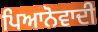
ਪਿਆਨੋਵਾਦੀ